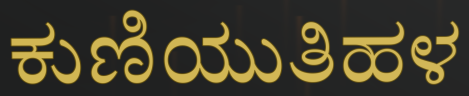
ಕುಣಿಯುತಿಹಳ